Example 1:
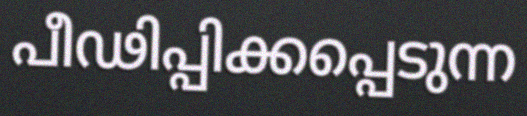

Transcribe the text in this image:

പീഢിപ്പിക്കപ്പെടുന്ന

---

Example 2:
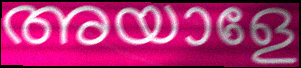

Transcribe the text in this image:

അയാളേ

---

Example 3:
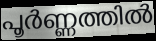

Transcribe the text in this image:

പൂർണ്ണത്തിൽ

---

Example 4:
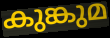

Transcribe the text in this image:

കുങ്കുമ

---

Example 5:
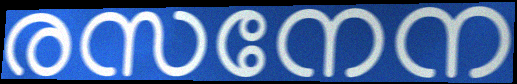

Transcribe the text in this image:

രസനേന